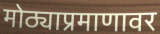
मोठ्याप्रमाणावर